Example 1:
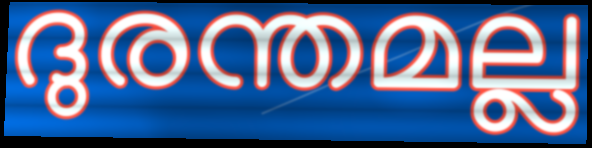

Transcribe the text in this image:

ദുരന്തമല്ല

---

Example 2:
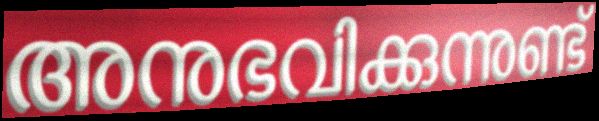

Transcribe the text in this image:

അനുഭവിക്കുന്നുണ്ട്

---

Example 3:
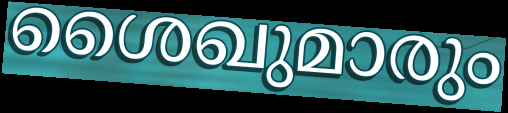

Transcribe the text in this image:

ശൈഖുമാരും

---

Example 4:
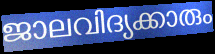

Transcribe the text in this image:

ജാലവിദ്യക്കാരും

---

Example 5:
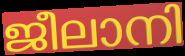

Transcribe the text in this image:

ജീലാനി